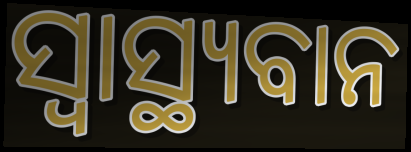
ସ୍ୱାସ୍ଥ୍ୟବାନ